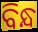
ବିନ୍ଧ